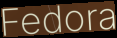
Fedora